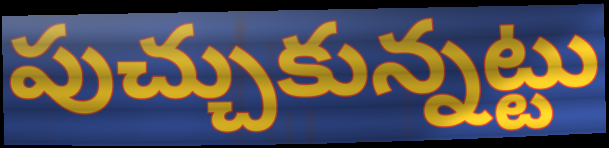
పుచ్చుకున్నట్టు